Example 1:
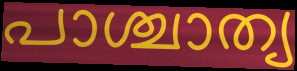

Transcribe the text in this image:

പാശ്ചാത്യ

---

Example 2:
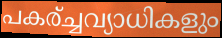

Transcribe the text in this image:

പകര്ച്ചവ്യാധികളും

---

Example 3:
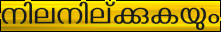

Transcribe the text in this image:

നിലനില്ക്കുകയും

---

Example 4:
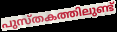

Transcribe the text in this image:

പുസ്തകത്തിലുണ്ട്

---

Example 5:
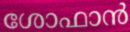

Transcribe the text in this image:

ശോഫാൻ